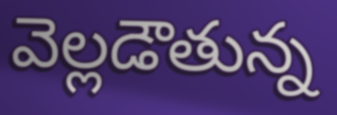
వెల్లడౌతున్న